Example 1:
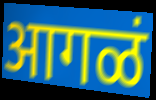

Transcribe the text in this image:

आगळं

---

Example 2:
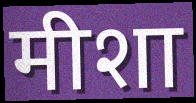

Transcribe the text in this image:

मीशा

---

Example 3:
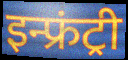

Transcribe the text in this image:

इन्फ्रंट्री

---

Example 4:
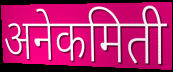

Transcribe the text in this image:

अनेकमिती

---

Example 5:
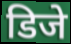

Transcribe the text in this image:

डिजे